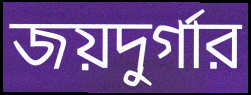
জয়দুর্গার